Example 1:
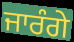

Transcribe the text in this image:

ਜਾਰੰਗੇ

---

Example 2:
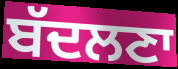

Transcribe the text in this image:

ਬੱਦਲਣਾ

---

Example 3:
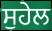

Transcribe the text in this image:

ਸੁਹੇਲ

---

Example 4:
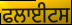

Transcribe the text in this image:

ਫਲਾਈਟਸ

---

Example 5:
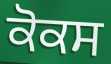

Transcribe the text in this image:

ਕੋਕਸ